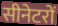
सीनेटरों